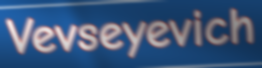
Vevseyevich